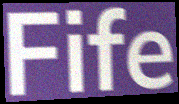
Fife